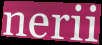
nerii